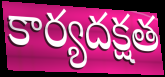
కార్యదక్షత